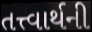
તત્ત્વાર્થની